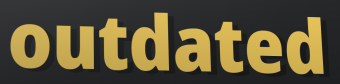
outdated